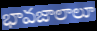
భావజాలాలూ